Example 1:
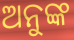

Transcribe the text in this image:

ଅନୁଙ୍କ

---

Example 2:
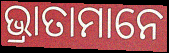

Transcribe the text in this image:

ଭ୍ରାତାମାନେ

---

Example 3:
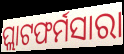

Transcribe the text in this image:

ପ୍ଲାଟଫର୍ମସାରା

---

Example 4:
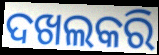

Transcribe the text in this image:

ଦଖଲକରି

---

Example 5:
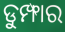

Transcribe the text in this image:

ଡୁମ୍ଫାର